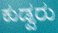
ಕುಡ್ವರು